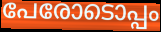
പേരോടൊപ്പം